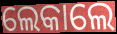
ଲେକାଲେ